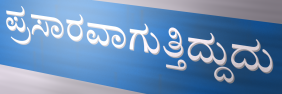
ಪ್ರಸಾರವಾಗುತ್ತಿದ್ದುದು